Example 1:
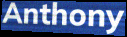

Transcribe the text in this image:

Anthony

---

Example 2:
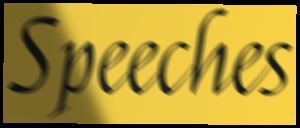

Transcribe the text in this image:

Speeches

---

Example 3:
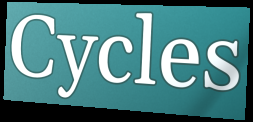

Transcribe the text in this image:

Cycles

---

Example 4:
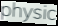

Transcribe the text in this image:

physic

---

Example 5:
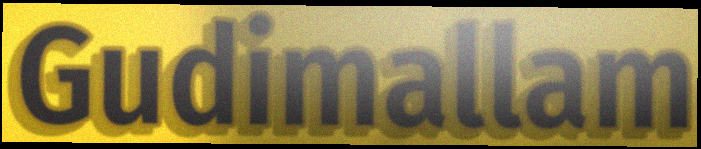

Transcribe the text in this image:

Gudimallam